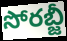
సోరబ్జీ